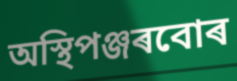
অস্থিপঞ্জৰবোৰ